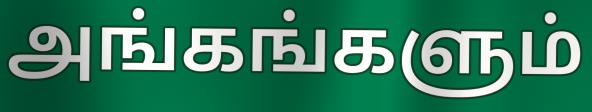
அங்கங்களும்